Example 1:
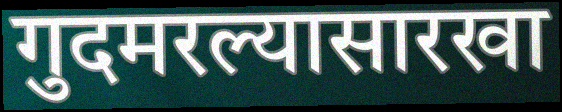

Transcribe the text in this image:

गुदमरल्यासारखा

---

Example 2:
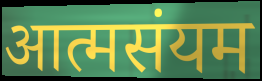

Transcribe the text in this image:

आत्मसंयम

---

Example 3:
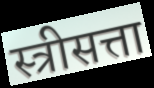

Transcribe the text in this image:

स्त्रीसत्ता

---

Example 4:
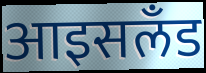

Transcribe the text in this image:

आइसलँड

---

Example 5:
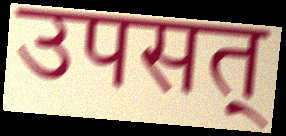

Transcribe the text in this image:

उपसत्